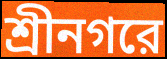
শ্রীনগরে